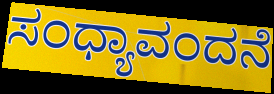
ಸಂಧ್ಯಾವಂದನೆ